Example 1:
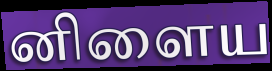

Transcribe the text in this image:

னிளைய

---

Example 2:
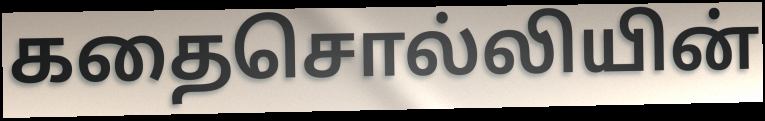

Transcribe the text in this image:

கதைசொல்லியின்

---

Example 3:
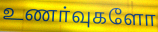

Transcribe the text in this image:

உணர்வுகளோ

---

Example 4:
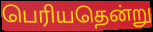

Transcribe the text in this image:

பெரியதென்று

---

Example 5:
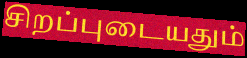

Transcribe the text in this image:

சிறப்புடையதும்